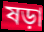
ষড়া